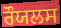
ਰੌਯਲਸ